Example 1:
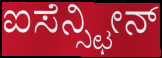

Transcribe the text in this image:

ಐಸೆನ್ಸ್ಟೀನ್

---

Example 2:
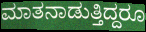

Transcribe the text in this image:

ಮಾತನಾಡುತ್ತಿದ್ದರೂ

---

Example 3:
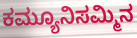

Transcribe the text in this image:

ಕಮ್ಯೂನಿಸಮ್ಮಿನ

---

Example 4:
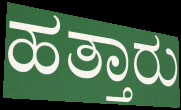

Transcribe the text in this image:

ಹತ್ತಾರು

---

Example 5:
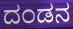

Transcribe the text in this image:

ದಂಡನ